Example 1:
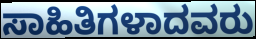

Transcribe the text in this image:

ಸಾಹಿತಿಗಳಾದವರು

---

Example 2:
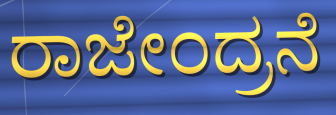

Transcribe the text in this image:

ರಾಜೇಂದ್ರನೆ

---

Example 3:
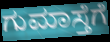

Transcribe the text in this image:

ಗುಮಾಸ್ತೆಗೆ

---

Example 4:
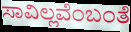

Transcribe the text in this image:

ಸಾವಿಲ್ಲವೆಂಬಂತೆ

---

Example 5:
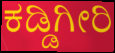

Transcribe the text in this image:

ಕಡ್ಡಿಗೀರಿ